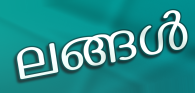
ലങ്ങൾ